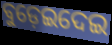
ବୁଡ଼େଇଦେଇ